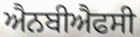
ਐਨਬੀਐਫਸੀ